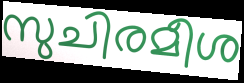
സുചിരമീശ